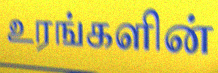
உரங்களின்